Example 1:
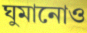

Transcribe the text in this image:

ঘুমানোও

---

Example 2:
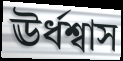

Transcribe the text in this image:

ঊর্ধশ্বাস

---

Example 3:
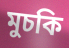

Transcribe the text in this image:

মুচকি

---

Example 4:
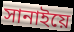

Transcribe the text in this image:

সানাইয়ে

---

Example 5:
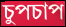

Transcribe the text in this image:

চুপচাপ